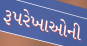
રૂપરેખાઓની